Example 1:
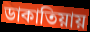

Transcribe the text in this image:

ডাকাতিয়ায়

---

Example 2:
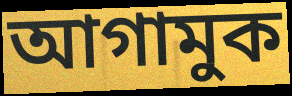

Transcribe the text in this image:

আগামুক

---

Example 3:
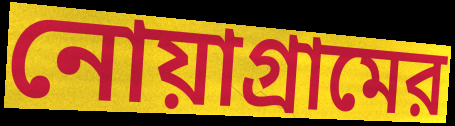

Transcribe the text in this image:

নোয়াগ্রামের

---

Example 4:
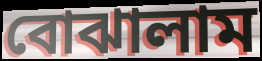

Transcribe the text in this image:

বোঝালাম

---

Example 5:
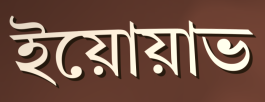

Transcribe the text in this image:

ইয়োয়াভ